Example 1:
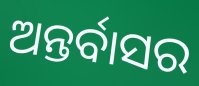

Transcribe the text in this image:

ଅନ୍ତର୍ବାସର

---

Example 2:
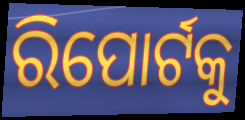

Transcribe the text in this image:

ରିପୋର୍ଟକୁ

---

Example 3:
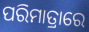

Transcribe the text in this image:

ପରିମାତ୍ରାରେ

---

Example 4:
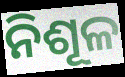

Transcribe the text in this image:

ନିଶୂଳ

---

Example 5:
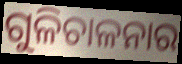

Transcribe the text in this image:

ଗୁଳିଚାଳନାର